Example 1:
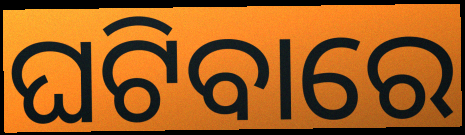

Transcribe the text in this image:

ଘଟିବାରେ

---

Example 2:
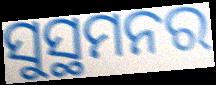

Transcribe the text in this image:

ସୁସ୍ଥମନର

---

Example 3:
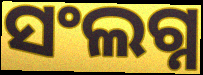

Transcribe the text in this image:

ସଂଲଗ୍ନ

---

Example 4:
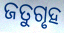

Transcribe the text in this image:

ଜତୁଗୃହ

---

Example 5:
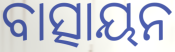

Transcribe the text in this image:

ବାତ୍ସାୟନ